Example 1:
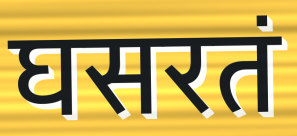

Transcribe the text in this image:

घसरतं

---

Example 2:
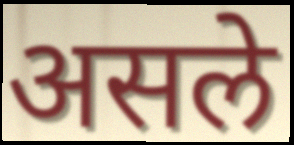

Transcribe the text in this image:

असले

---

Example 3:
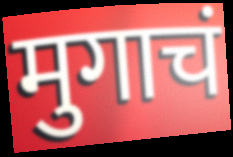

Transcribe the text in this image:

मुगाचं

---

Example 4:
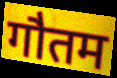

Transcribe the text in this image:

गौतम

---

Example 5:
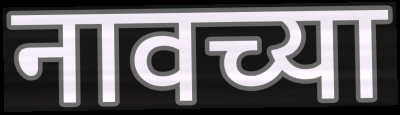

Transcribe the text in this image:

नावच्या